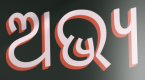
ଅଭ୍ୟ